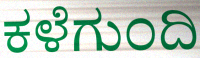
ಕಳೆಗುಂದಿ